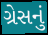
ગ્રેસનું